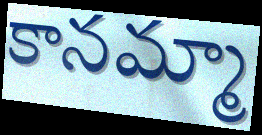
కానమ్మా